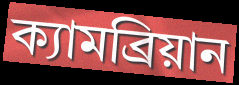
ক্যামব্রিয়ান